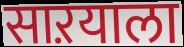
साऱयाला